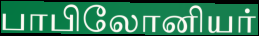
பாபிலோனியர்